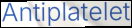
Antiplatelet